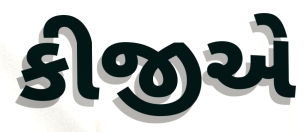
કીજીએ